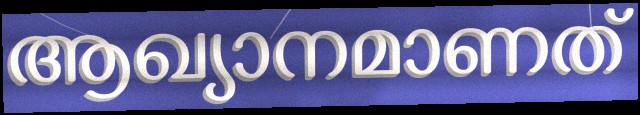
ആഖ്യാനമാണത്